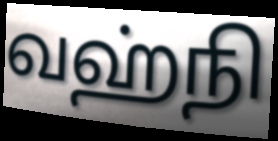
வஹ்நி